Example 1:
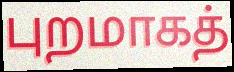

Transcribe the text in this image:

புறமாகத்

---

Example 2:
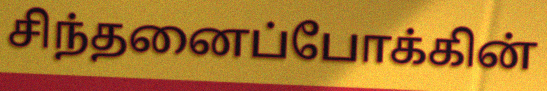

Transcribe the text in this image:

சிந்தனைப்போக்கின்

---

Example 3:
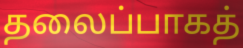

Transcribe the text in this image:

தலைப்பாகத்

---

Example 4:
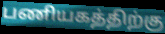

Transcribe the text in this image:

பணியகத்திற்கு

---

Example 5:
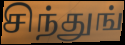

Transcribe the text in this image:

சிந்துங்